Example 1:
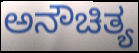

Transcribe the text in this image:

ಅನೌಚಿತ್ಯ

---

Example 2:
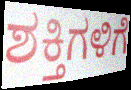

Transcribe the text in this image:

ಶಕ್ತಿಗಳಿಗೆ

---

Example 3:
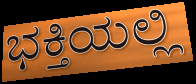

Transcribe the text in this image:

ಭಕ್ತಿಯಲ್ಲಿ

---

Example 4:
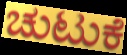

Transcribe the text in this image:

ಚುಟುಕೆ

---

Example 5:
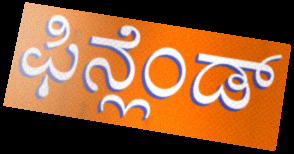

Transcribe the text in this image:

ಫಿನ್ಲೆಂಡ್